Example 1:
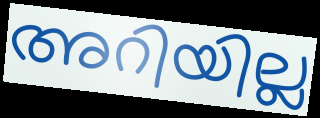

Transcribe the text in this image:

അറിയില്ല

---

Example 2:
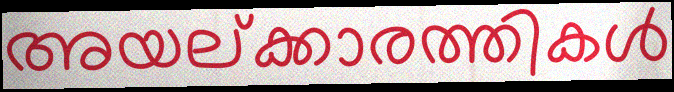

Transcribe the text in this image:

അയല്ക്കാരത്തികൾ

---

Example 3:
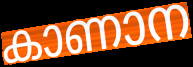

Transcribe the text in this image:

കാണാന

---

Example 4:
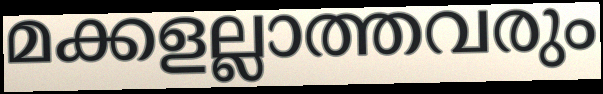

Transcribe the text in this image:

മക്കളല്ലാത്തവരും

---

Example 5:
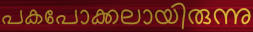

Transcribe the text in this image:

പകപോക്കലായിരുന്നു